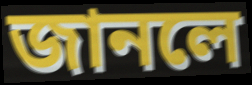
জানলে